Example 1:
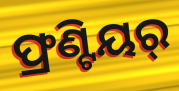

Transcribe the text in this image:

ଫ୍ରଣ୍ଟିୟର୍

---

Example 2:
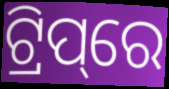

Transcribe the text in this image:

ଟ୍ରିପ୍‌ରେ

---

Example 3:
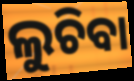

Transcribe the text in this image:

ଲୁଚିବା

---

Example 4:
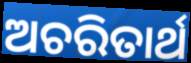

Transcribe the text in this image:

ଅଚରିତାର୍ଥ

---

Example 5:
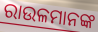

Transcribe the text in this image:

ରାଉଳମାନଙ୍କ